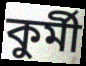
কুৰ্মী